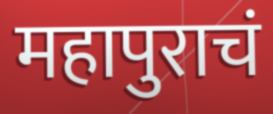
महापुराचं